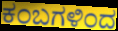
ಕಂಬಗಳಿಂದ